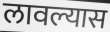
लावल्यास